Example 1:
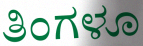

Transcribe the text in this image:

ತಿಂಗಳೂ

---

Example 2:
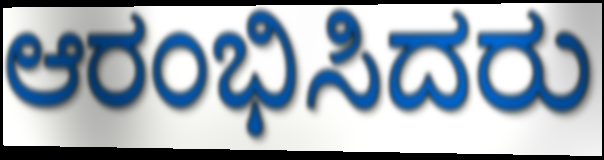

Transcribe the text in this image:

ಆರಂಭಿಸಿದರು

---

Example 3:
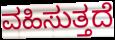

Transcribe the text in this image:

ವಹಿಸುತ್ತದೆ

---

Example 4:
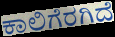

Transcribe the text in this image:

ಕಾಲಿಗೆರಗಿದೆ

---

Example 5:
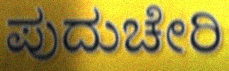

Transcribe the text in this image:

ಪುದುಚೇರಿ